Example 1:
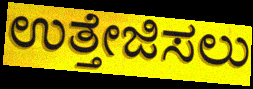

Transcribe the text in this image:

ಉತ್ತೇಜಿಸಲು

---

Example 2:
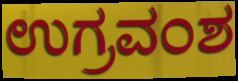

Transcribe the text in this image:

ಉಗ್ರವಂಶ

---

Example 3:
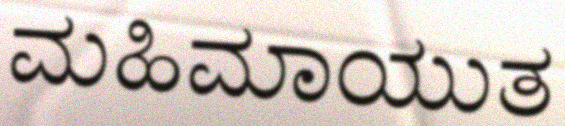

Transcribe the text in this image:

ಮಹಿಮಾಯುತ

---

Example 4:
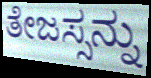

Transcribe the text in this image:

ತೇಜಸ್ಸನ್ನು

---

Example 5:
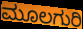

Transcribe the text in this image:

ಮೂಲಗುರಿ